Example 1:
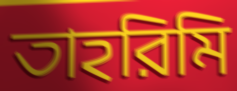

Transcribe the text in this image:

তাহরিমি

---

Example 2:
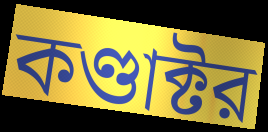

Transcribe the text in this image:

কণ্ডাক্টর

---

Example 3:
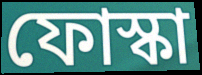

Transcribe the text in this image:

ফোস্কা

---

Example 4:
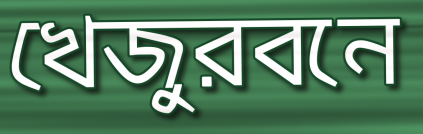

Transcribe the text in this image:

খেজুরবনে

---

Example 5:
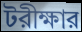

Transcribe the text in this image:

টরীক্ষার